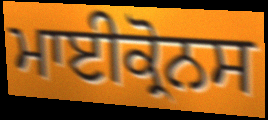
ਮਾਈਕ੍ਰੋਨਸ